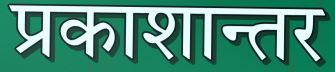
प्रकाशान्तर